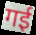
गई